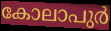
കോലാപുർ